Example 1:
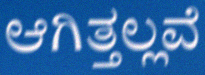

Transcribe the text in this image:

ಆಗಿತ್ತಲ್ಲವೆ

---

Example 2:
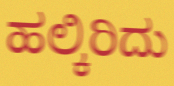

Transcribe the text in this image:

ಹಲ್ಕಿರಿದು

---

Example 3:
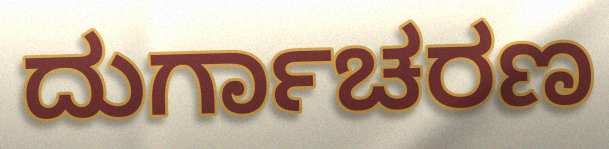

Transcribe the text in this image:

ದುರ್ಗಾಚರಣ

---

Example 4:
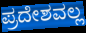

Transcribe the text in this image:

ಪ್ರದೇಶವಲ್ಲ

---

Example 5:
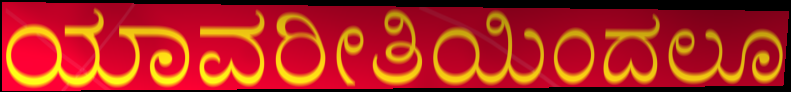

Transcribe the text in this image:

ಯಾವರೀತಿಯಿಂದಲೂ